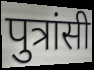
पुत्रांसी